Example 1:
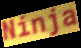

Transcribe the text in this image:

Ninja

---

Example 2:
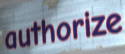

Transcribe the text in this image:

authorize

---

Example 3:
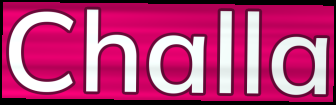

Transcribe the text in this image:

Challa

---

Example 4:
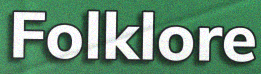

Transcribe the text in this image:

Folklore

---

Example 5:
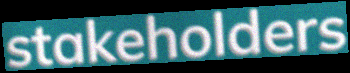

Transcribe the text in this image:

stakeholders